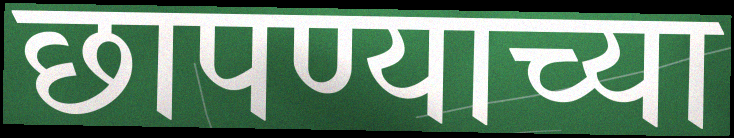
छापण्याच्या